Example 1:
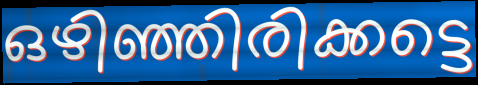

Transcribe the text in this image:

ഒഴിഞ്ഞിരിക്കട്ടെ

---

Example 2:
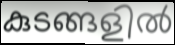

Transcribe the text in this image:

കുടങ്ങളിൽ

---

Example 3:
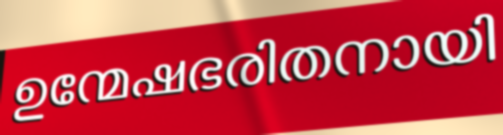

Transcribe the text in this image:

ഉന്മേഷഭരിതനായി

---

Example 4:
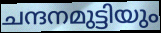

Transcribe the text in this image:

ചന്ദനമുട്ടിയും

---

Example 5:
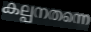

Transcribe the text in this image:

കല്പനതന്നെ